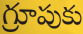
గ్రూపుకు